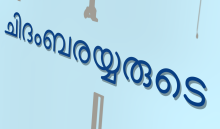
ചിദംബരയ്യരുടെ